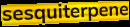
sesquiterpene